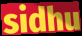
sidhu